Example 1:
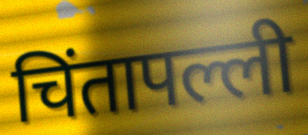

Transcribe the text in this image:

चिंतापल्ली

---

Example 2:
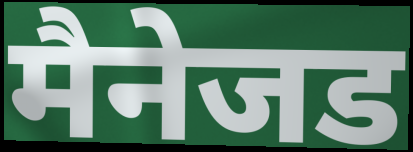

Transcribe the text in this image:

मैनेजड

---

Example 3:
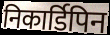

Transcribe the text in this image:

निकार्डिपिन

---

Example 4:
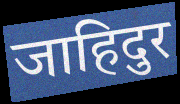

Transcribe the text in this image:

जाहिदुर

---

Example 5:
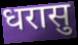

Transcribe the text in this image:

धरासु